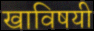
खाविषयी